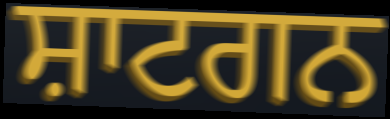
ਸ਼ਾਟਗਨ